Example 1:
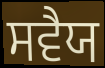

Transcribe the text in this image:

ਸਵੈਯ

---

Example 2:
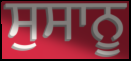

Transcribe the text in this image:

ਸੁਸਾਨੂ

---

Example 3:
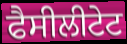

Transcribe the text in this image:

ਫੈਸੀਲੀਟੇਟ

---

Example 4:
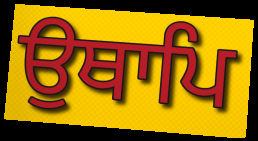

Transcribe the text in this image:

ਉਥਾਪਿ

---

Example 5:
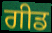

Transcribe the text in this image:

ਗੀਡ